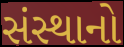
સંસ્થાનો